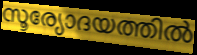
സൂര്യോദയത്തിൽ